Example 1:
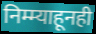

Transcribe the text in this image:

निम्म्याहूनही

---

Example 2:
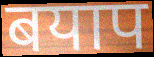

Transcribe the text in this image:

बयाप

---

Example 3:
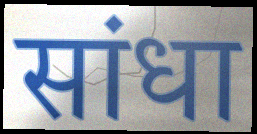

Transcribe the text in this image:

सांधा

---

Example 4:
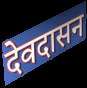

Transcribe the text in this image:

देवदासन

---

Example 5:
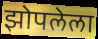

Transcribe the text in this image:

झोपलेला